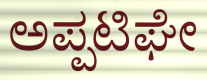
ಅಪ್ಪಟಿಘೇ